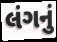
લંગનું